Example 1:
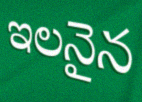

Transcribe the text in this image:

ఇలనైన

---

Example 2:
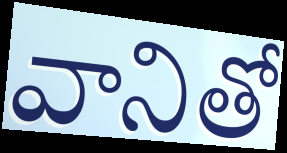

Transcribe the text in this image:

వానితో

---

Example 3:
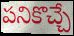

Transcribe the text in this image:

పనికొచ్చే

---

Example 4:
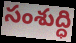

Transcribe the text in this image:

సంశుద్ధి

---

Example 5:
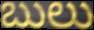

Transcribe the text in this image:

బులు